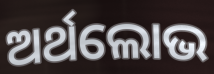
ଅର୍ଥଲୋଭ